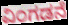
ವಿಂಗಡನೆ